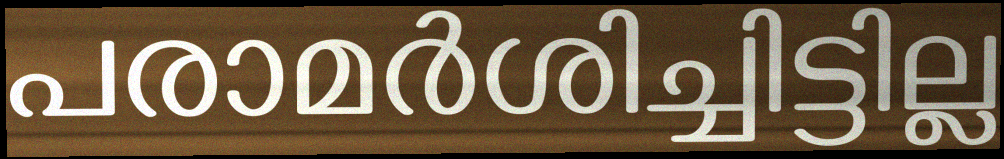
പരാമർശിച്ചിട്ടില്ല